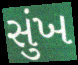
સુંખ